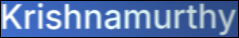
Krishnamurthy